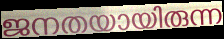
ജനതയായിരുന്ന